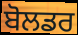
ਬੋਲਡਰ